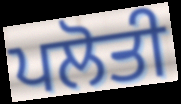
ਪਲੋਤੀ